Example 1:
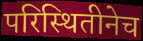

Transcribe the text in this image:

परिस्थितीनेच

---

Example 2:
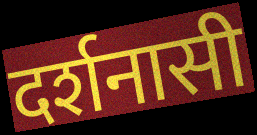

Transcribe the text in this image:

दर्शनासी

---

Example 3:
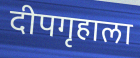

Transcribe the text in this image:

दीपगृहाला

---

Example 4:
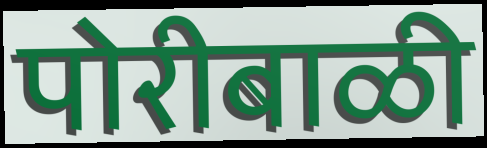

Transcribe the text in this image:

पोरीबाळी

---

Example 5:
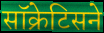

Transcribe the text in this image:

सॉक्रेटिसने